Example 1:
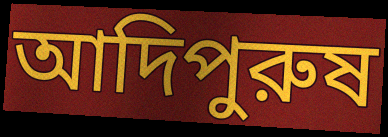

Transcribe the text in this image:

আদিপুরুষ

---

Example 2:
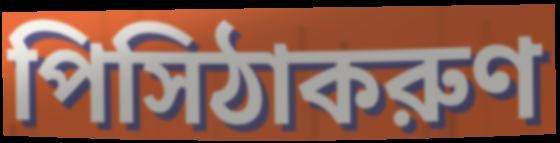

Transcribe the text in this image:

পিসিঠাকরুণ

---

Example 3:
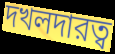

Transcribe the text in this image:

দখলদারত্ব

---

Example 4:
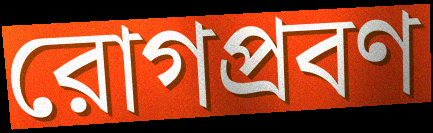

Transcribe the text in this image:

রোগপ্রবণ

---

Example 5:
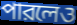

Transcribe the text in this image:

পারলেও